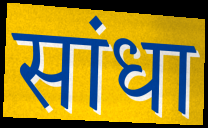
सांधा